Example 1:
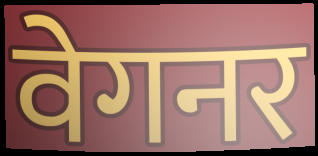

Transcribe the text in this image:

वेगनर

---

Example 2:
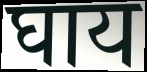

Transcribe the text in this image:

घाय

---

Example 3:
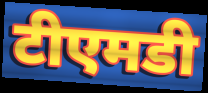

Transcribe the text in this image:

टीएमडी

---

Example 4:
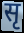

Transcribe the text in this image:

सृ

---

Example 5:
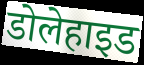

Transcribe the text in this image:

डोलेहाइड